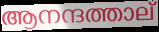
ആനന്ദത്താല്